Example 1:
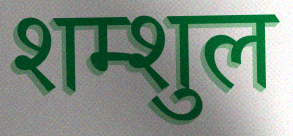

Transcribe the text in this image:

शम्शुल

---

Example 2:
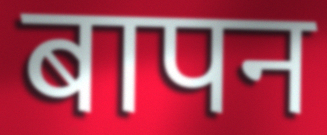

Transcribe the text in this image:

बापन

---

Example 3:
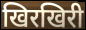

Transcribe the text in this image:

खिरखिरी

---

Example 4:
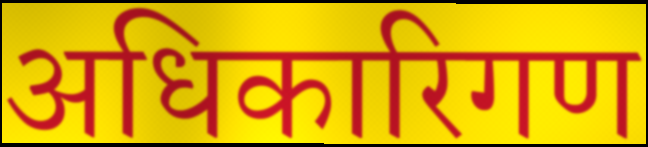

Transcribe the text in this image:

अधिकारिगण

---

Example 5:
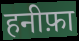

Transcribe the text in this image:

हनीफ़ा